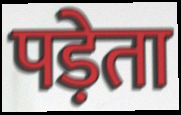
पड़ेता